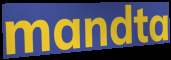
mandta